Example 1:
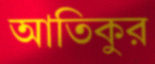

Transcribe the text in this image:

আতিকুর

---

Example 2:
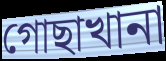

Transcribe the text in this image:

গোছাখানা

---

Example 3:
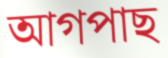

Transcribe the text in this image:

আগপাছ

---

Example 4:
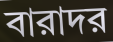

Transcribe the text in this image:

বারাদর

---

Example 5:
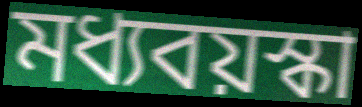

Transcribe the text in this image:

মধ্যবয়স্কা